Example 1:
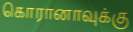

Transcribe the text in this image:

கொரானாவுக்கு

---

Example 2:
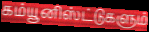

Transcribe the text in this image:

கம்யூனிஸ்ட்டுகளும்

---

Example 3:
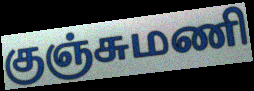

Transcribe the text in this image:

குஞ்சுமணி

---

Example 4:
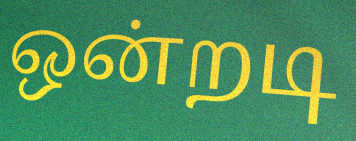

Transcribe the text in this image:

ஒன்றடி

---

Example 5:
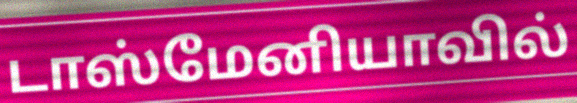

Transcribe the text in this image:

டாஸ்மேனியாவில்